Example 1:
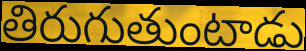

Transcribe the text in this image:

తిరుగుతుంటాడు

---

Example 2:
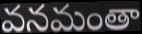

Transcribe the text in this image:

వనమంతా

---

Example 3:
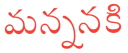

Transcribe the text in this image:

మన్ననకి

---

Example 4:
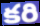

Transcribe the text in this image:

కరి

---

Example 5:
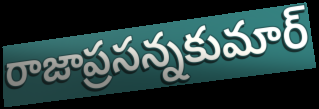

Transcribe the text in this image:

రాజాప్రసన్నకుమార్